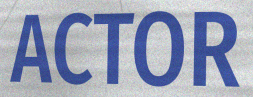
ACTOR